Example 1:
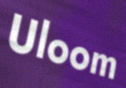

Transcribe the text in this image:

Uloom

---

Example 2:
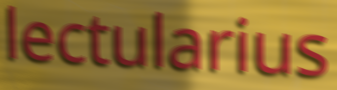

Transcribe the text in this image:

lectularius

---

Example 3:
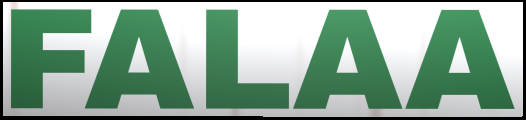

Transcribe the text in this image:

FALAA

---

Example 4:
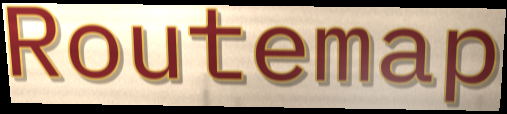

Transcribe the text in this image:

Routemap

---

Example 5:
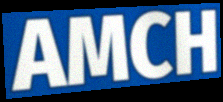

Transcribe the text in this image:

AMCH